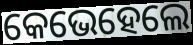
କେଭେହେଲେ